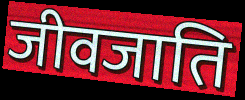
जीवजाति